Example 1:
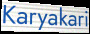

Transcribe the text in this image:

Karyakari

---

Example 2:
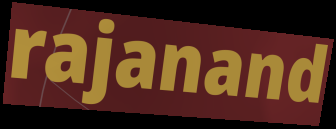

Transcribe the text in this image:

rajanand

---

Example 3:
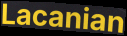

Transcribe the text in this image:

Lacanian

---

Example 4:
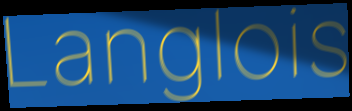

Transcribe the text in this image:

Langlois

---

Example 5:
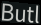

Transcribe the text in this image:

Butl